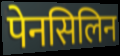
पेनसिलिन